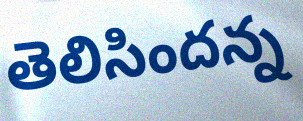
తెలిసిందన్న